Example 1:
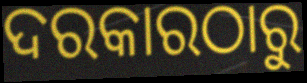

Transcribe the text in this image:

ଦରକାରଠାରୁ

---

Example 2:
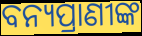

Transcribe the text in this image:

ବନ୍ୟପ୍ରାଣୀଙ୍କ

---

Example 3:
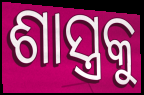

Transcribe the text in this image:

ଶାସ୍ତ୍ରକୁ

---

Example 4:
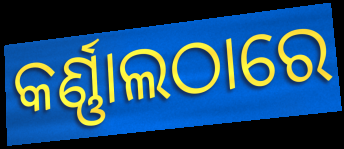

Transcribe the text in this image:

କର୍ଣ୍ଣାଲଠାରେ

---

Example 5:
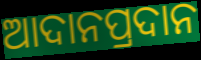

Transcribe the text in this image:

ଆଦାନପ୍ରଦାନ